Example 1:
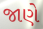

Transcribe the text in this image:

જાણે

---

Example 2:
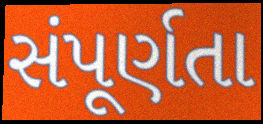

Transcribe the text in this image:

સંપૂર્ણતા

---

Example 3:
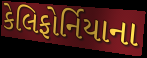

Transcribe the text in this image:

કેલિફોર્નિયાના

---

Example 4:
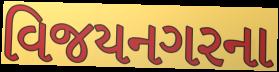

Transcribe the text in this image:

વિજયનગરના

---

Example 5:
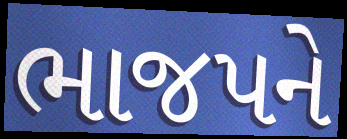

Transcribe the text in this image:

ભાજપને